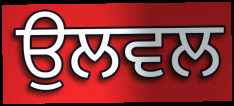
ਉਲਵਲ